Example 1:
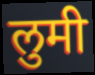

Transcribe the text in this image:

लुमी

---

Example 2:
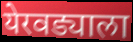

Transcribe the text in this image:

येरवड्याला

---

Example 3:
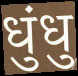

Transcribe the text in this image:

धुंधु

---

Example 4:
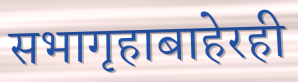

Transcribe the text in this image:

सभागृहाबाहेरही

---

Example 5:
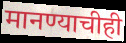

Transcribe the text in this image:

मानण्याचीही